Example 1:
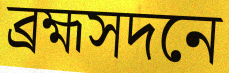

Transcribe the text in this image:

ব্রহ্মসদনে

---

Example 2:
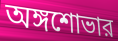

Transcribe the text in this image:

অঙ্গশোভার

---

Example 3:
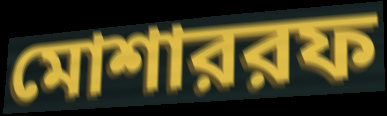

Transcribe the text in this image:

মোশাররফ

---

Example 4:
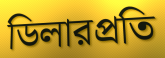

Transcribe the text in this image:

ডিলারপ্রতি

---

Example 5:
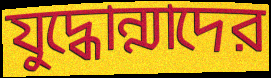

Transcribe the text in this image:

যুদ্ধোন্মাদের